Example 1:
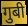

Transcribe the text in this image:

गुबी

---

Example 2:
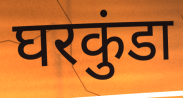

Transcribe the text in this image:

घरकुंडा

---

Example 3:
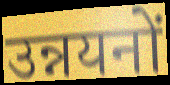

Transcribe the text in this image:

उन्नयनों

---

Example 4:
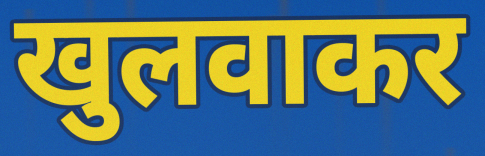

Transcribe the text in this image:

खुलवाकर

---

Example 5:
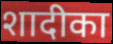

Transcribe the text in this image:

शादीका